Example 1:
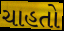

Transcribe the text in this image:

ચાહતો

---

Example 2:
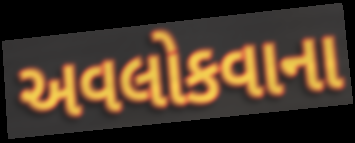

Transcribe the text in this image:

અવલોકવાના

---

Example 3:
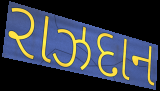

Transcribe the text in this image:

રાઝદાન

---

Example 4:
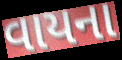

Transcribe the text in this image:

વાયના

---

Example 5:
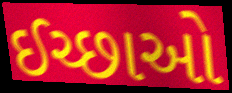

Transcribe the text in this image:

ઈચ્છાઓ